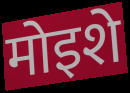
मोइशे